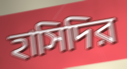
হাসিদির